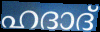
ഹദാദ്